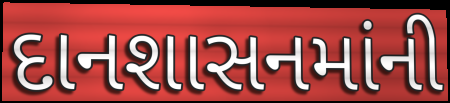
દાનશાસનમાંની